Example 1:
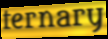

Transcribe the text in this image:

ternary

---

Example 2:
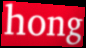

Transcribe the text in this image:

hong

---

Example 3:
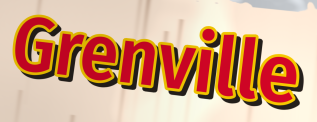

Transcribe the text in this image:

Grenville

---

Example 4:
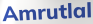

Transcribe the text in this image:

Amrutlal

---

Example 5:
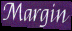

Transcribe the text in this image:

Margin